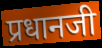
प्रधानजी